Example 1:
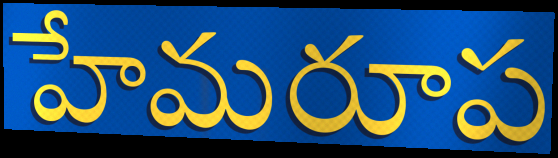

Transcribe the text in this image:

హేమరూప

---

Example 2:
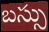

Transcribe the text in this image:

బస్సు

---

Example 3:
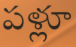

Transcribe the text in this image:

పళ్లూ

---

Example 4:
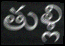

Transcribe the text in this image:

తుళ్లి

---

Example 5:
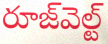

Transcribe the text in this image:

రూజ్‌వెల్ట్